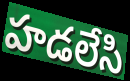
హడలేసి